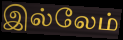
இல்லேம்